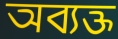
অব্যক্ত